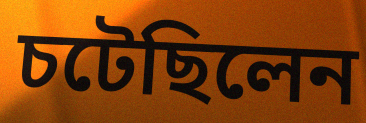
চটেছিলেন